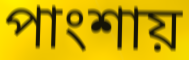
পাংশায়